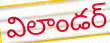
విలాండర్